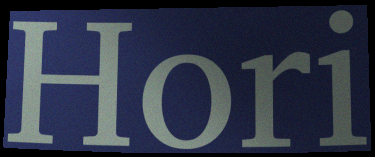
Hori